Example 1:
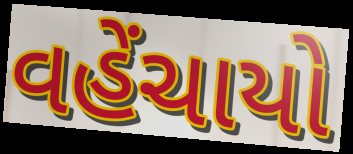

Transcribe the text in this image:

વહેંચાયો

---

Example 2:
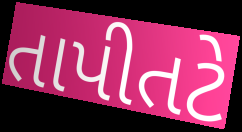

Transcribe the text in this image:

તાપીતટે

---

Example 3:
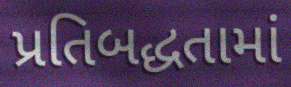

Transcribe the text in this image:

પ્રતિબદ્ધતામાં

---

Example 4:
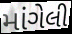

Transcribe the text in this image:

માંગેલી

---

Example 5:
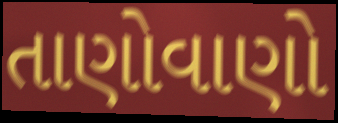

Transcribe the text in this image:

તાણોવાણો